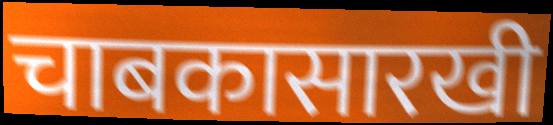
चाबकासारखी